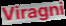
Viragni